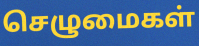
செழுமைகள்